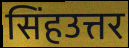
सिंहउत्तर